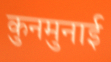
कुनमुनाई